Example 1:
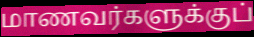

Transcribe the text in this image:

மாணவர்களுக்குப்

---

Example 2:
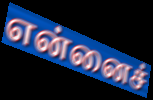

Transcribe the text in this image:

என்னைச்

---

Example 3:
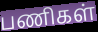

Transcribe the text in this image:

பணிகள்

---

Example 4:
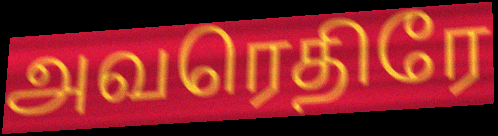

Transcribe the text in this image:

அவரெதிரே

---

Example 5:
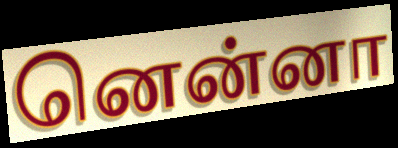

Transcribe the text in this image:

னென்னா